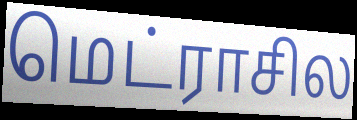
மெட்ராசில